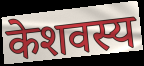
केशवस्य